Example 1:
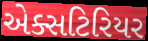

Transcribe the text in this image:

એક્સટિરિયર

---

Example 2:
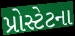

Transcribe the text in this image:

પ્રોસ્ટેટના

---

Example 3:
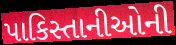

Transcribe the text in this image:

પાકિસ્તાનીઓની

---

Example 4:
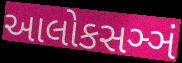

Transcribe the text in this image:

આલોકસઞ્ઞં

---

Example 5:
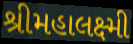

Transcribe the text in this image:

શ્રીમહાલક્ષ્મી